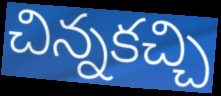
చిన్నకచ్చి